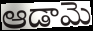
ఆడామె